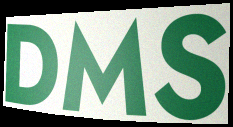
DMS